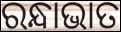
ରନ୍ଧାଭାତ